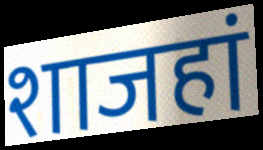
शाजहां